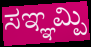
ಸಞ್ಞಮ್ಪಿ